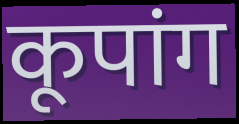
कूपांग